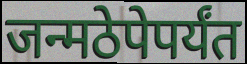
जन्मठेपेपर्यंत